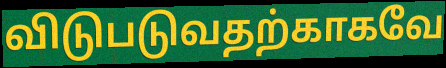
விடுபடுவதற்காகவே